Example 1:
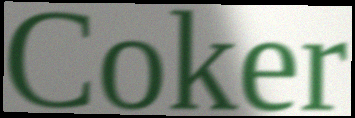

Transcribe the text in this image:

Coker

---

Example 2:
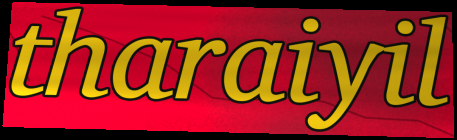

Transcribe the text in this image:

tharaiyil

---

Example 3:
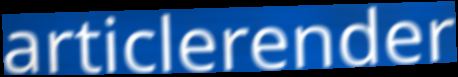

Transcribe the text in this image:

articlerender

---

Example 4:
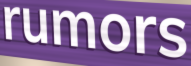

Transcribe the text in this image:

rumors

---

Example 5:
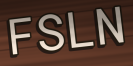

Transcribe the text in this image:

FSLN